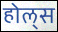
होल्स